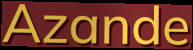
Azande